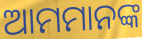
ଆମମାନଙ୍କ